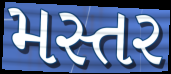
મસ્તર